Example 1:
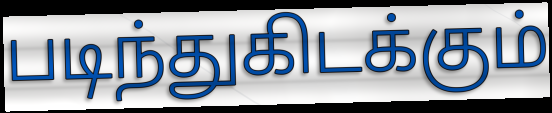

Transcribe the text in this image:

படிந்துகிடக்கும்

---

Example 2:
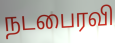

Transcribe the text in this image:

நடபைரவி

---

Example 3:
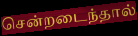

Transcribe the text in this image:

சென்றடைந்தால்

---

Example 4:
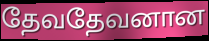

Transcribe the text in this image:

தேவதேவனான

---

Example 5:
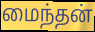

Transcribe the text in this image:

மைந்தன்